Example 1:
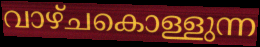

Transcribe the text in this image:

വാഴ്ചകൊള്ളുന്ന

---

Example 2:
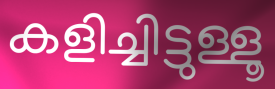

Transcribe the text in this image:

കളിച്ചിട്ടുള്ളൂ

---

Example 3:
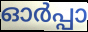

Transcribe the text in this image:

ഓർപ്പാ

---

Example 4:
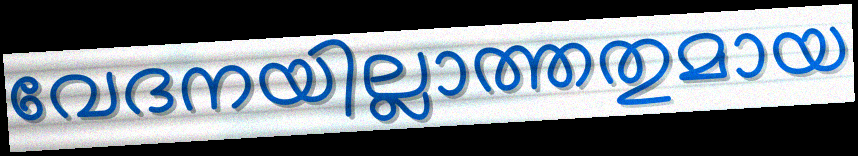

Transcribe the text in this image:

വേദനയില്ലാത്തതുമായ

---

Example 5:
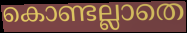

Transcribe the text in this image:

കൊണ്ടല്ലാതെ